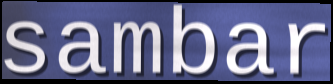
sambar